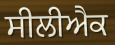
ਸੀਲੀਐਕ